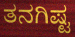
ತನಗಿಷ್ಟ